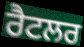
ਰੈਟਲਰ